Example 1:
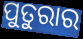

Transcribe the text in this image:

ପୁତୁରାର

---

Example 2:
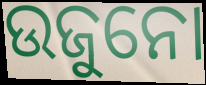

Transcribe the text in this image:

ଉଜୁନୋ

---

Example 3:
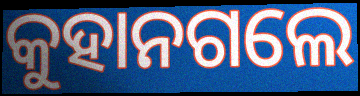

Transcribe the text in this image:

କୁହାନଗଲେ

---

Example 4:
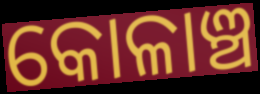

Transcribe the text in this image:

କୋଳାଞ୍ଚ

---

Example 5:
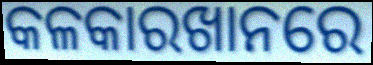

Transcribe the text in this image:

କଳକାରଖାନରେ